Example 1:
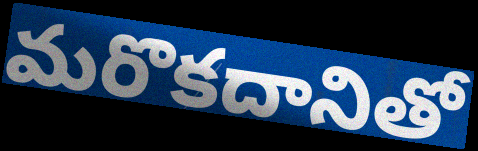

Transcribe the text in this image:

మరొకదానితో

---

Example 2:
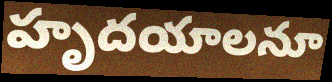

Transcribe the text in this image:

హృదయాలనూ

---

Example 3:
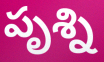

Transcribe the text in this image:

పృశ్ని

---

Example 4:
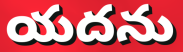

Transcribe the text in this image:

యదను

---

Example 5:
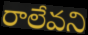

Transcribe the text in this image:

రాలేవని